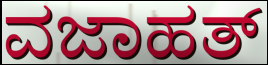
ವಜಾಹತ್